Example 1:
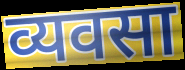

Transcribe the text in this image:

व्यवसा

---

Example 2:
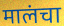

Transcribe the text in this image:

मालंचा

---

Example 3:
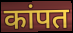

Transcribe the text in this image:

कांपत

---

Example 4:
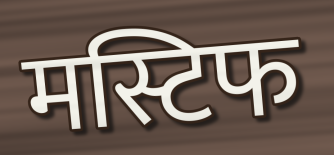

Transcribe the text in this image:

मस्टिफ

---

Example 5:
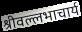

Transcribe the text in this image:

श्रीवल्लभाचार्य